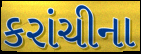
કરાંચીના